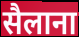
सैलाना